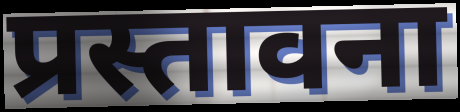
प्रस्तावना